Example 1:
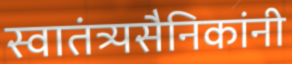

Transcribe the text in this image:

स्वातंत्र्यसैनिकांनी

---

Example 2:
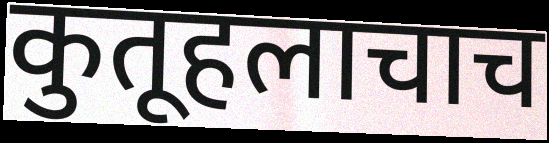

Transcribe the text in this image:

कुतूहलाचाच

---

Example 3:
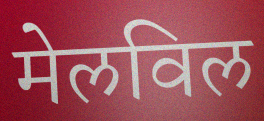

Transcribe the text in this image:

मेलविल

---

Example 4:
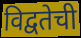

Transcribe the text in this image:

विद्वतेची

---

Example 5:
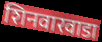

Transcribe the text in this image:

शिनवारवाडा